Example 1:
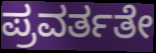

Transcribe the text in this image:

ಪ್ರವರ್ತತೇ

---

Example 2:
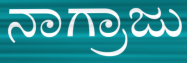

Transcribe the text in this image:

ನಾಗ್ರಾಜು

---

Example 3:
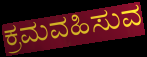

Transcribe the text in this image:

ಕ್ರಮವಹಿಸುವ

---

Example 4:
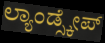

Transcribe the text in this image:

ಲ್ಯಾಂಡ್ಸ್ಕೇಪ್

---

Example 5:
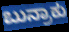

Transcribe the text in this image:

ಬುನ್ರಾಕು